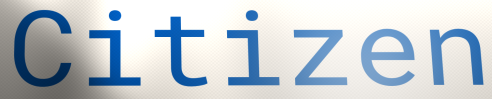
Citizen